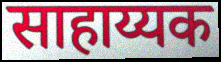
साहाय्यक